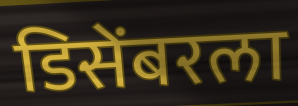
डिसेंबरला